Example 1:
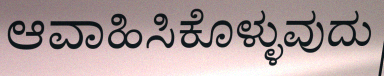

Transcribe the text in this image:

ಆವಾಹಿಸಿಕೊಳ್ಳುವುದು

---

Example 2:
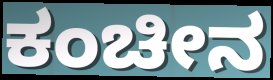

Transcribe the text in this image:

ಕಂಚೀನ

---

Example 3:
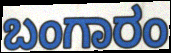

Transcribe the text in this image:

ಬಂಗಾರಂ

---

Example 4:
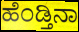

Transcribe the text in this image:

ಹೆಂಡ್ತಿನಾ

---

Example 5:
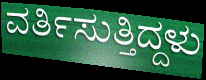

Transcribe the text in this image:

ವರ್ತಿಸುತ್ತಿದ್ದಳು